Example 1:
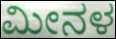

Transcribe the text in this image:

ಮೀನಳ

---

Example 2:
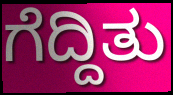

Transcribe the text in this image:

ಗೆದ್ದಿತು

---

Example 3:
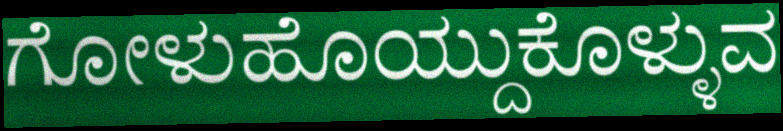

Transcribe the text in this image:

ಗೋಳುಹೊಯ್ದುಕೊಳ್ಳುವ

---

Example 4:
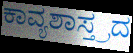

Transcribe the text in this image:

ಕಾವ್ಯಶಾಸ್ತ್ರದ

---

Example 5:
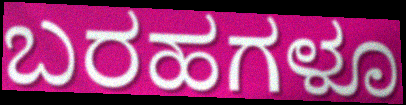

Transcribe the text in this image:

ಬರಹಗಳೂ